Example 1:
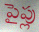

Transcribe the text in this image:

పైప్లు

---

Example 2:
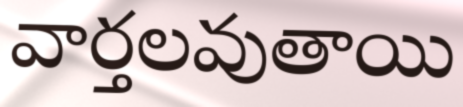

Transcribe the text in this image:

వార్తలవుతాయి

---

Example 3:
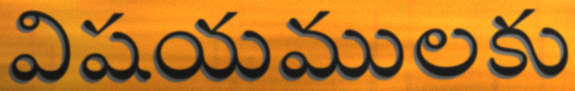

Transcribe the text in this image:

విషయములకు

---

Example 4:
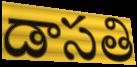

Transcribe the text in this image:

డాసతి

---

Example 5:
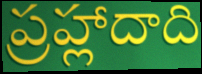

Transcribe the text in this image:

ప్రహ్లాదాది